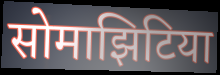
सोमाझिटिया